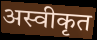
अस्‍वीकृत